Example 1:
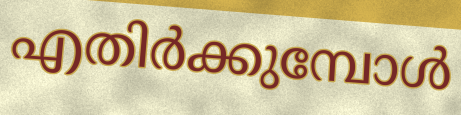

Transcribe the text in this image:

എതിർക്കുമ്പോൾ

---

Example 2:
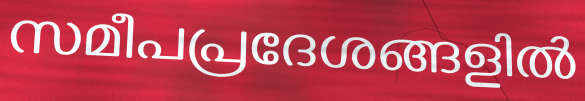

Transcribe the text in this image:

സമീപപ്രദേശങ്ങളിൽ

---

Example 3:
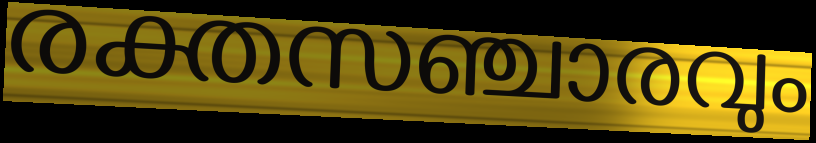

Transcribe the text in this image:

രക്തസഞ്ചാരവും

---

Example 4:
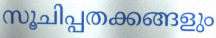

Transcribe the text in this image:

സൂചിപ്പതക്കങ്ങളും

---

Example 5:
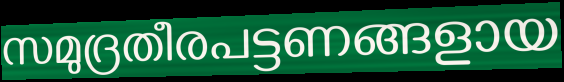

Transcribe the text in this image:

സമുദ്രതീരപട്ടണങ്ങളായ